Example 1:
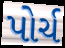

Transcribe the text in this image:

પોર્ચ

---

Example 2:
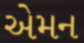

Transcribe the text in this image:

એમન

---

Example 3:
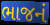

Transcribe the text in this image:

ભાજનં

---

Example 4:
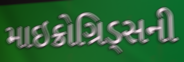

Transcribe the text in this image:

માઇક્રોગ્રિડ્સની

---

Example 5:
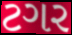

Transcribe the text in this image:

ટગર